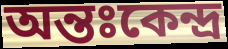
অন্তঃকেন্দ্র